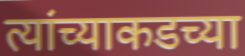
त्यांच्याकडच्या